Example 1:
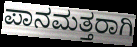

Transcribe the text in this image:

ಪಾನಮತ್ತರಾಗಿ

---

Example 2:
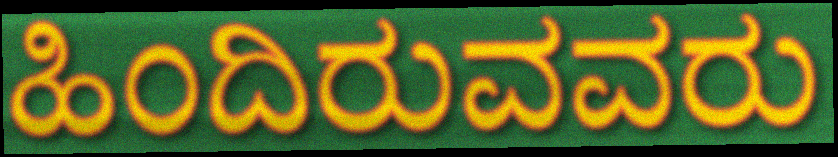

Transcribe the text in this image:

ಹಿಂದಿರುವವರು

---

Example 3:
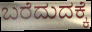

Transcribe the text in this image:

ಬರೆದುದಕ್ಕೆ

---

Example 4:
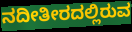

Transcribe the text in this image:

ನದೀತೀರದಲ್ಲಿರುವ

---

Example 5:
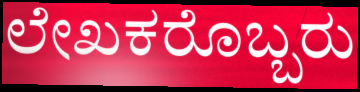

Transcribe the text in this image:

ಲೇಖಕರೊಬ್ಬರು